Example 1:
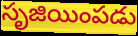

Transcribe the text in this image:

సృజియింపడు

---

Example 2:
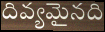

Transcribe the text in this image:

దివ్యమైనది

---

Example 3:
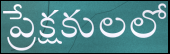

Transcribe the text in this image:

ప్రేక్షకులలో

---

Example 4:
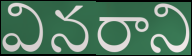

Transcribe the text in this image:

వినరాని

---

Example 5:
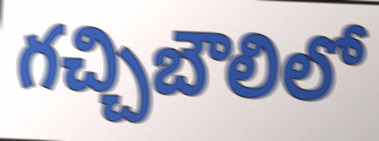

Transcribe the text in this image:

గచ్చిబౌలిలో